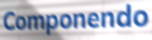
Componendo